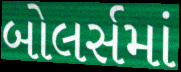
બોલર્સમાં